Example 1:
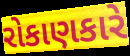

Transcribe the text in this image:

રોકાણકારે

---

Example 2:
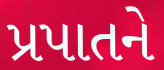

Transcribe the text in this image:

પ્રપાતને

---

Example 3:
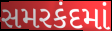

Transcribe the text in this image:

સમરકંદમાં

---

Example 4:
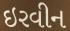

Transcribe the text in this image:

ઇરવીન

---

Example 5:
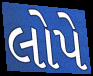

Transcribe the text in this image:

લોપે